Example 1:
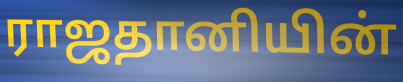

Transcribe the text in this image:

ராஜதானியின்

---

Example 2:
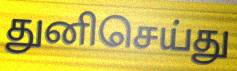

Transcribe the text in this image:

துனிசெய்து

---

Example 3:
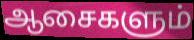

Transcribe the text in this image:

ஆசைகளும்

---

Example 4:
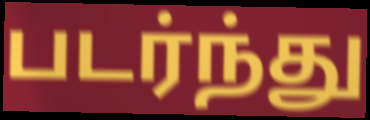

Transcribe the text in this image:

படர்ந்து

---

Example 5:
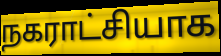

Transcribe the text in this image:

நகராட்சியாக